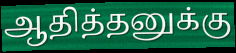
ஆதித்தனுக்கு